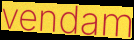
vendam